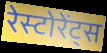
रेस्टोरेंट्स